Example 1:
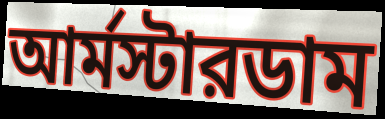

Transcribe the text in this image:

আর্মস্টারডাম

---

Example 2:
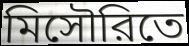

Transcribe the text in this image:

মিসৌরিতে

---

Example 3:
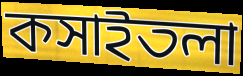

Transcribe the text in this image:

কসাইতলা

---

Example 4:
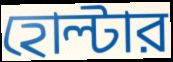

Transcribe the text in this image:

হোল্টার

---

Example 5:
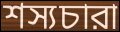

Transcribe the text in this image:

শস্যচারা